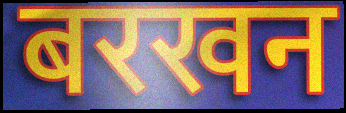
बरखन